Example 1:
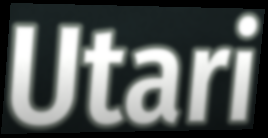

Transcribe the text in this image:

Utari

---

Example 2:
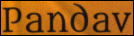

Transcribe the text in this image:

Pandav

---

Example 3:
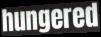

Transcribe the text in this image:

hungered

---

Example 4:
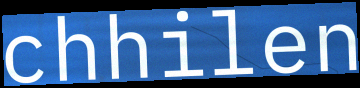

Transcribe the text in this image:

chhilen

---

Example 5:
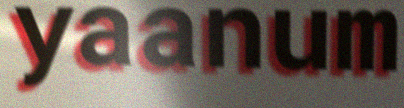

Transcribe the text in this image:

yaanum